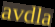
avdla